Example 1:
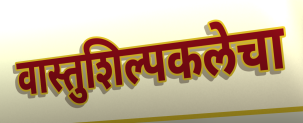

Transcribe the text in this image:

वास्तुशिल्पकलेचा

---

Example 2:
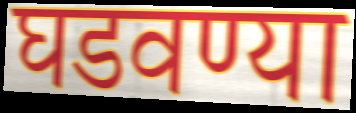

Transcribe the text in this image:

घडवण्या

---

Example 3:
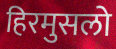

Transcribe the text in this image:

हिरमुसलो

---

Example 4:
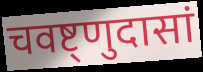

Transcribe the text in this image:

चवष्ट्णुदासां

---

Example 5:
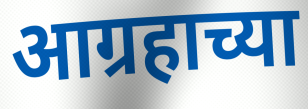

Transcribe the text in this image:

आग्रहाच्या